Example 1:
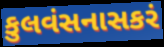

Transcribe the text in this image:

કુલવંસનાસકરં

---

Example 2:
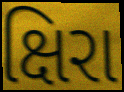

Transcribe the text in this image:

ક્ષિરા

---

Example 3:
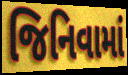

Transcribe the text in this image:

જિનિવામાં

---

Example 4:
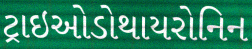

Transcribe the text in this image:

ટ્રાઇઓડોથાયરોનિન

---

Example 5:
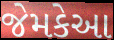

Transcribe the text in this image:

જેમકેઆ